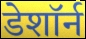
डेशॉर्न